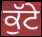
ਕੁੱਟੇ